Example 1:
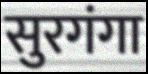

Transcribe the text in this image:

सुरगंगा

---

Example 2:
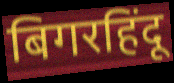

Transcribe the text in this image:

बिगरहिंदू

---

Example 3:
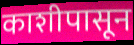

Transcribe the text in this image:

काशीपासून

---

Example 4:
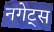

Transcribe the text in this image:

नगेट्स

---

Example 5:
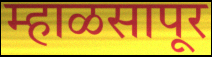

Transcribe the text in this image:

म्हाळसापूर